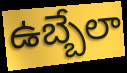
ఉబ్బేలా